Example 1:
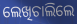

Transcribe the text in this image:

ଲେଖିଚାଲିଲେ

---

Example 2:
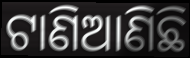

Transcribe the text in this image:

ଟାଣିଆଣିଛି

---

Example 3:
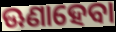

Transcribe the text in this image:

ଊଣାହେବା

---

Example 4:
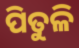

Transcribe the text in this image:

ପିତୁଳି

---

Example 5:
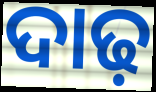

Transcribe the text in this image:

ଦାଢ଼